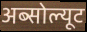
अब्सोल्यूट